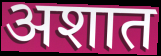
अशात